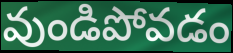
వుండిపోవడం